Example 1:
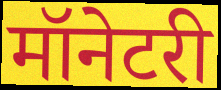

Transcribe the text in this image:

मॉनेटरी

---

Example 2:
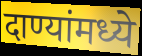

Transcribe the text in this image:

दाण्यांमध्ये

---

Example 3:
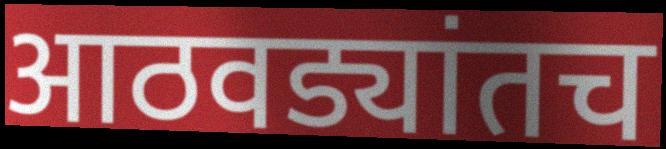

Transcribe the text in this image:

आठवड्यांतच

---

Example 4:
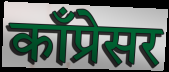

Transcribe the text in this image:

काँप्रेसर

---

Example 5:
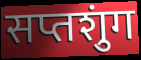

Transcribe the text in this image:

सप्तश्रुंग